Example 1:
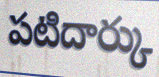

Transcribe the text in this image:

పటిదార్కు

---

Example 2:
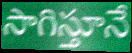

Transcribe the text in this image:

సాగిస్తూనే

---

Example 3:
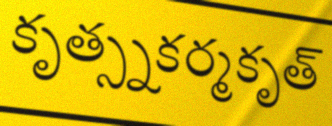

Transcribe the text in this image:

కృత్స్నకర్మకృత్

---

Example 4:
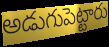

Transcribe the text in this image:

అడుగుపెట్టారు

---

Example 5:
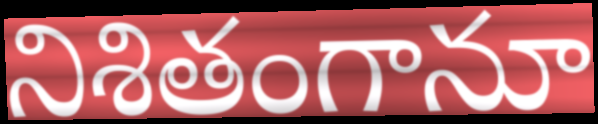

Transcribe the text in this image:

నిశితంగానూ